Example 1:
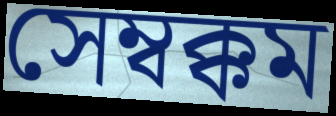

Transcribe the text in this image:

সেম্বক্কম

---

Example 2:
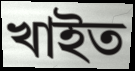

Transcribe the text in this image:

খাইত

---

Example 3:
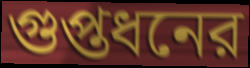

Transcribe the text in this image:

গুপ্তধনের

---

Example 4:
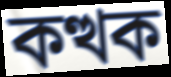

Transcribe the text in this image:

কত্থক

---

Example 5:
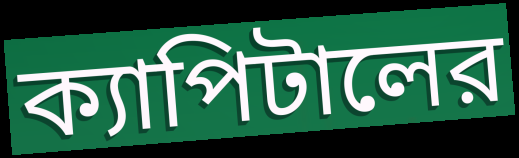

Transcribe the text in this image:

ক্যাপিটালের